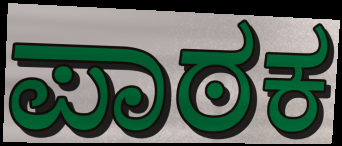
ಪಾಠಕ